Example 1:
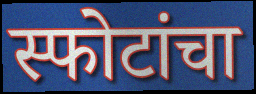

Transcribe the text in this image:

स्फोटांचा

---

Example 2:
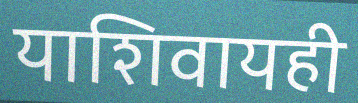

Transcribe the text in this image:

याशिवायही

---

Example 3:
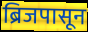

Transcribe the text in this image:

ब्रिजपासून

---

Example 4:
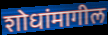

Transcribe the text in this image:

शोधांमागील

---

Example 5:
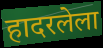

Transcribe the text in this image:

हादरलेला